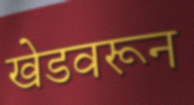
खेडवरून